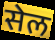
सेल